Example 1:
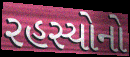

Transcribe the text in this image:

રહસ્યોનો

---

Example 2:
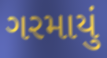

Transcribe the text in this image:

ગરમાયું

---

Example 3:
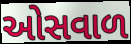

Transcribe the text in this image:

ઓસવાળ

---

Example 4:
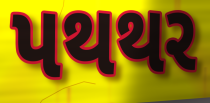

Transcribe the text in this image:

પથથર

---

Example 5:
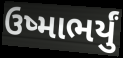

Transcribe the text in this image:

ઉષ્માભર્યું